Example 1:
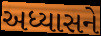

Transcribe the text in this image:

અધ્યાસને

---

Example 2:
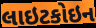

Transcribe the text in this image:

લાઇટકોઇન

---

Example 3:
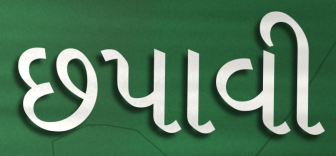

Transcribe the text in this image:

છપાવી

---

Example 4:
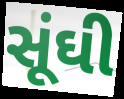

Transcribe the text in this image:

સૂંઘી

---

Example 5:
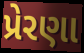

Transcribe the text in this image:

પ્રેરણા